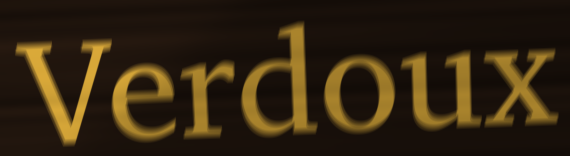
Verdoux